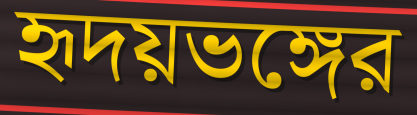
হৃদয়ভঙ্গের